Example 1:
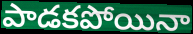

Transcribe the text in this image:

పాడకపోయినా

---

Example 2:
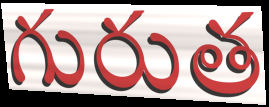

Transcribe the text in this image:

గురుత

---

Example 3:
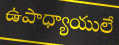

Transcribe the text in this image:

ఉపాధ్యాయులే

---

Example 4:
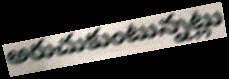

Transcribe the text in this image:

అరుచుకుంటున్నట్లు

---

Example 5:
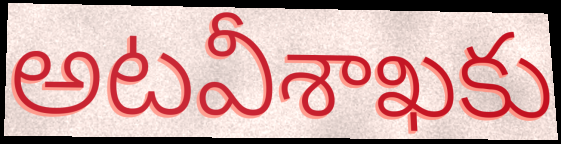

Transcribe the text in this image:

అటవీశాఖకు